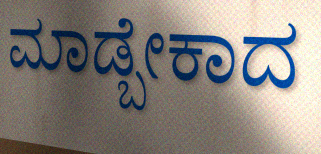
ಮಾಡ್ಬೇಕಾದ